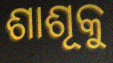
ଶାଶୂକୁ